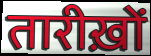
तारीख़ों